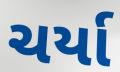
ચર્યા